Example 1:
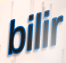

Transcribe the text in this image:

bilir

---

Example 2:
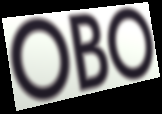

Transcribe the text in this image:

OBO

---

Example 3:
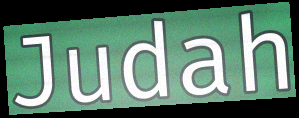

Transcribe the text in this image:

Judah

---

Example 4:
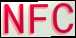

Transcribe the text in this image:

NFC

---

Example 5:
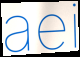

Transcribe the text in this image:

aei